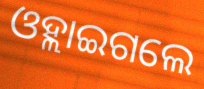
ଓହ୍ଲାଇଗଲେ